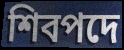
শিবপদে